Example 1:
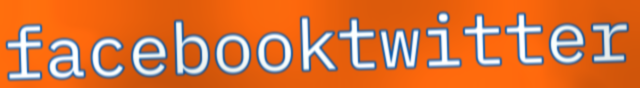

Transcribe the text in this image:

facebooktwitter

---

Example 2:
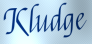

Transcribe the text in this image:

Kludge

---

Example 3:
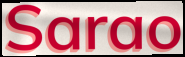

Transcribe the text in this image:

Sarao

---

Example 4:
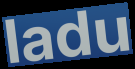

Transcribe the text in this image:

ladu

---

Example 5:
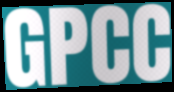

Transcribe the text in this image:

GPCC